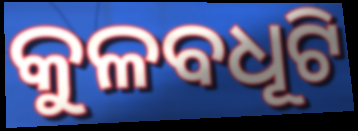
କୁଳବଧୂଟି